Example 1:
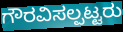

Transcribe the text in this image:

ಗೌರವಿಸಲ್ಪಟ್ಟರು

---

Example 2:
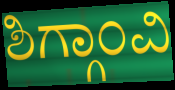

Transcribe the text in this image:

ಶಿಗ್ಗಾಂವಿ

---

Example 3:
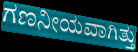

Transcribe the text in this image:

ಗಣನೀಯವಾಗಿತ್ತು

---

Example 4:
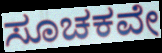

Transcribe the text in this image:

ಸೂಚಕವೇ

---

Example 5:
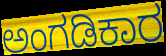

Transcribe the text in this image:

ಅಂಗಡಿಕಾರ